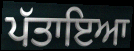
ਪੱਤਾਇਆ